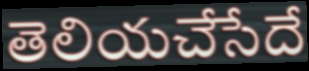
తెలియచేసేదే